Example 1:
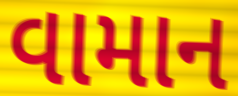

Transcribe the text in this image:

વામાન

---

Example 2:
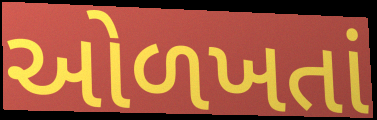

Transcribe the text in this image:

ઓળખતાં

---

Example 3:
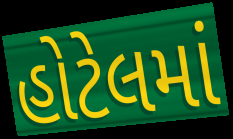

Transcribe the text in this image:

હોટેલમાં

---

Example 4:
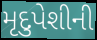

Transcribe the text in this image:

મૃદુપેશીની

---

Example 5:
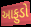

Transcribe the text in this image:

આફુડો